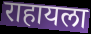
राहायला